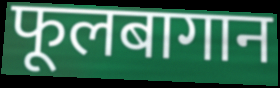
फूलबागान